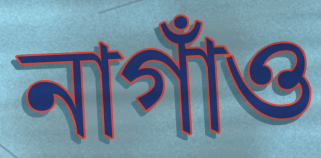
নাগাঁও